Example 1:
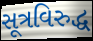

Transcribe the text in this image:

સૂત્રવિરુદ્ધ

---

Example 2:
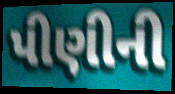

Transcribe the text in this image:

પીણીની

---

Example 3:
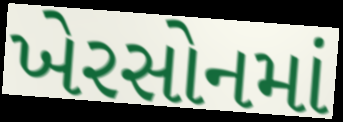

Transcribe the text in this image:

ખેરસોનમાં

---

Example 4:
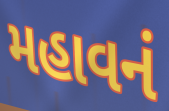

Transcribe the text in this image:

મહાવનં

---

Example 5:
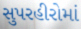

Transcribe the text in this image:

સુપરહીરોમાં